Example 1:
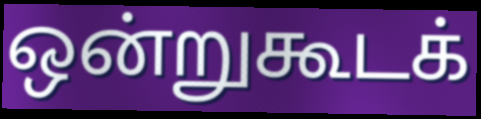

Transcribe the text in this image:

ஒன்றுகூடக்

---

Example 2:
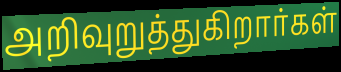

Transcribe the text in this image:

அறிவுறுத்துகிறார்கள்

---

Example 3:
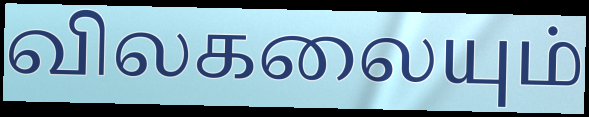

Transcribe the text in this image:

விலகலையும்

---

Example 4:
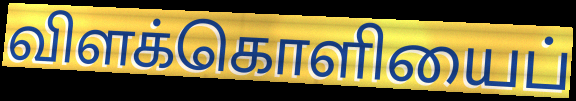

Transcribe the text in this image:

விளக்கொளியைப்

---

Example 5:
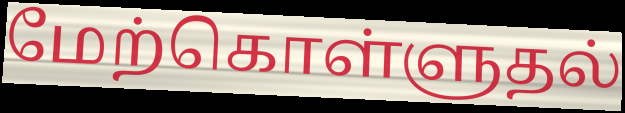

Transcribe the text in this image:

மேற்கொள்ளுதல்